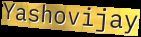
Yashovijay